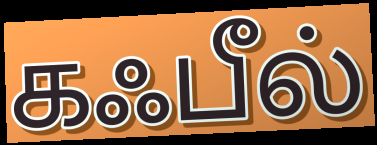
கஃபீல்